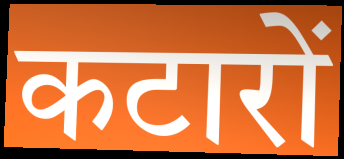
कटारों